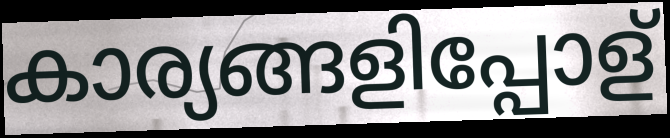
കാര്യങ്ങളിപ്പോള്